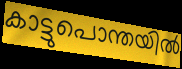
കാട്ടുപൊന്തയിൽ